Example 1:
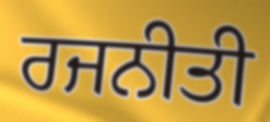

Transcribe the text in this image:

ਰਜਨੀਤੀ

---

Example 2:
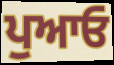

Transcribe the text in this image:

ਪੁਆਓ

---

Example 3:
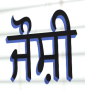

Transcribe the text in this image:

ਜੌਸ਼ੀ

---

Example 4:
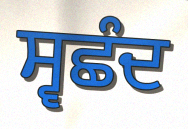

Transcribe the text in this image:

ਸ੍ਵਛੰਦ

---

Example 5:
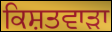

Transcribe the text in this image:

ਕਿਸ਼ਤਵਾੜਾ